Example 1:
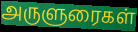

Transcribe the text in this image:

அருளுரைகள்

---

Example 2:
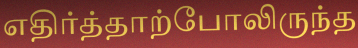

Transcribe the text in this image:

எதிர்த்தாற்போலிருந்த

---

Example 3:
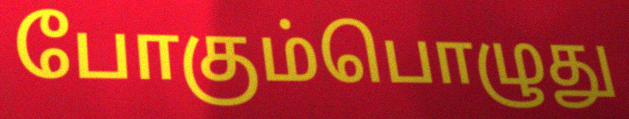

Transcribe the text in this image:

போகும்பொழுது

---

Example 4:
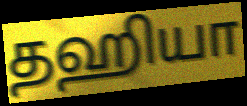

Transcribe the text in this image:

தஹியா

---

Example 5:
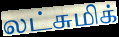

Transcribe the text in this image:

லட்சுமிக்